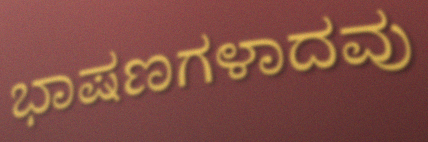
ಭಾಷಣಗಳಾದವು